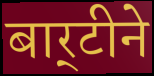
बार्टीने